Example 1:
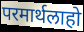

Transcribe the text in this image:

परमार्थलाहो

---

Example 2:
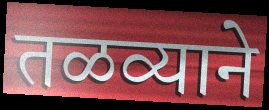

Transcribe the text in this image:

तळव्याने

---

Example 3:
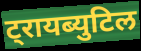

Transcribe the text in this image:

ट्रायब्युटिल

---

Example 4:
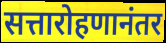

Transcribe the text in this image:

सत्तारोहणानंतर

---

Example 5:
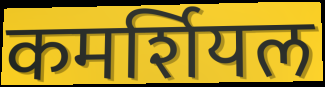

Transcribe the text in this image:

कमर्शियल